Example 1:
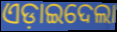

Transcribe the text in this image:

ଏଡ଼ାଇଦେଲା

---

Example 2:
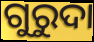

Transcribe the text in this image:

ଗୁରୁଦା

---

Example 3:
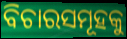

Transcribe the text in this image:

ବିଚାରସମୂହକୁ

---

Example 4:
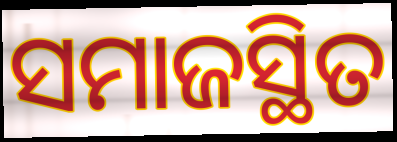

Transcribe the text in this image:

ସମାଜସ୍ଥିତ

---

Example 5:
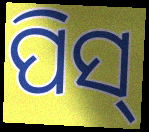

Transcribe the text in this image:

ପିସ୍